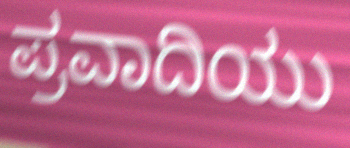
ಪ್ರವಾದಿಯು